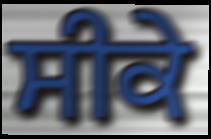
ਸੀਕੇ